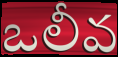
ఒలీవ